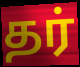
தர்